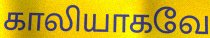
காலியாகவே